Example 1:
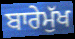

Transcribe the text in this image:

ਬਾਰੇਮੁੱਖ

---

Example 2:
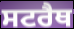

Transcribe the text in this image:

ਸਟਰੈਥ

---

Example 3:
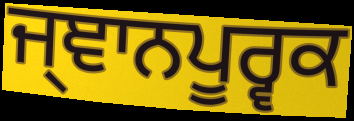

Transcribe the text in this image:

ਜ੍ਞਾਨਪੂਰ੍ਵਕ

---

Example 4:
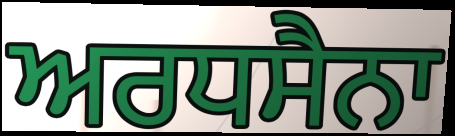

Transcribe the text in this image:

ਅਰਧਸੈਨਾ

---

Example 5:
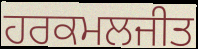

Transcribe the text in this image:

ਹਰਕਮਲਜੀਤ